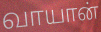
வாயான்